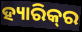
ହ୍ୟାରିକ୍‌ର